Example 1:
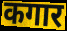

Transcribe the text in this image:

कगार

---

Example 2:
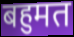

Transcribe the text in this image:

बहुमत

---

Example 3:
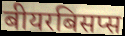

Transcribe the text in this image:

बीयरबिसप्स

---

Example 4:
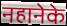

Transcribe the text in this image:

नहानेके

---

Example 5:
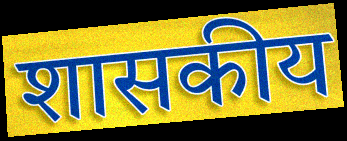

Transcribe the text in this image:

शासकीय